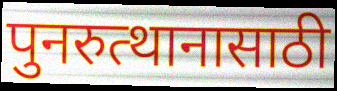
पुनरुत्थानासाठी